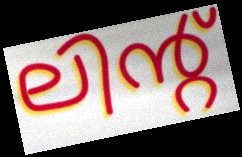
ലിന്റ്